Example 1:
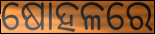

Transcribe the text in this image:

ଷୋହଳରେ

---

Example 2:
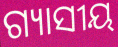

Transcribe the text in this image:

ଗ୍ୟାସୀୟ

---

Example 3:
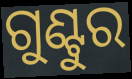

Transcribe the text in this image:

ଗୁଣ୍ଟୁର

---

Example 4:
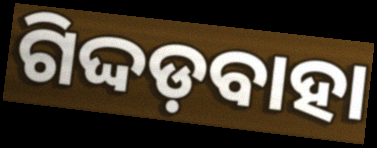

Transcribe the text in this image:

ଗିଦ୍ଦଡ଼ବାହା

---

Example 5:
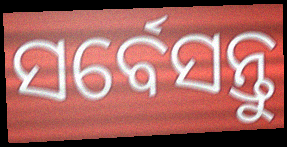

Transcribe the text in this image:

ସର୍ବେସନ୍ତୁ